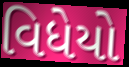
વિધેયો